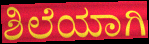
ಶಿಲೆಯಾಗಿ